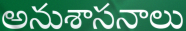
అనుశాసనాలు